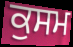
ਕੁਸਮ